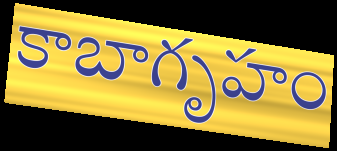
కాబాగృహం